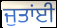
ਜੁਤਾਂਈ